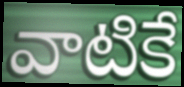
వాటికే